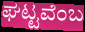
ಘಟ್ಟವೆಂಬ